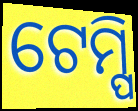
ଟେମ୍ପି